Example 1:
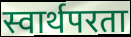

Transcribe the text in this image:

स्वार्थपरता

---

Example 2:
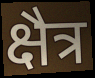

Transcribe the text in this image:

क्षैत्र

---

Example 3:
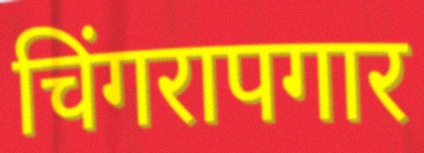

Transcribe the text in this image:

चिंगरापगार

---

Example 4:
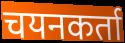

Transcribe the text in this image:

चयनकर्ता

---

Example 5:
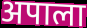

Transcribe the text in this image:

अपाला